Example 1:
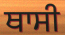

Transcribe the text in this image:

ਥਾਸੀ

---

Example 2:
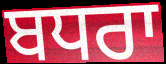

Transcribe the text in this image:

ਬਧਰਾ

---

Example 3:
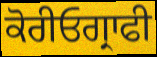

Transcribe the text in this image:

ਕੋਰੀਓਗ੍ਰਾਫੀ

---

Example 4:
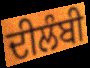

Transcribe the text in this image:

ਦੀਲੰਬੀ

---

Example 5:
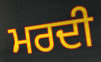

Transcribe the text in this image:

ਮਰਦੀ